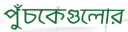
পুঁচকেগুলোর